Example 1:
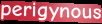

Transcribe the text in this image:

perigynous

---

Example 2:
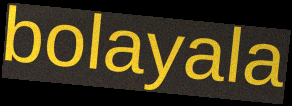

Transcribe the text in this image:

bolayala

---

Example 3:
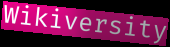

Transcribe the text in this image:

Wikiversity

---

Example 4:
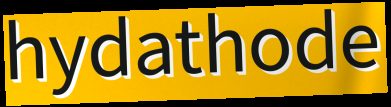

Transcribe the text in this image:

hydathode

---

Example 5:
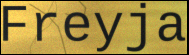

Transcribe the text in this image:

Freyja